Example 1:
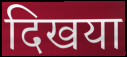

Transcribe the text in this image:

दिखया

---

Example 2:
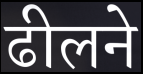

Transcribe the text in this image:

ढीलने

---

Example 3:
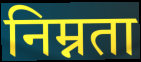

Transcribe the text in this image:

निम्नता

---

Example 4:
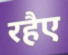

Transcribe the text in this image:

रहैए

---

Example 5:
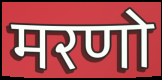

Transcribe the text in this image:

मरणो